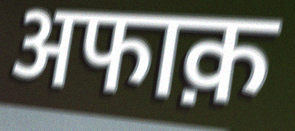
अफाक़